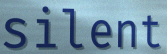
silent